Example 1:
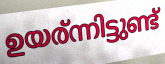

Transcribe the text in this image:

ഉയര്ന്നിട്ടുണ്ട്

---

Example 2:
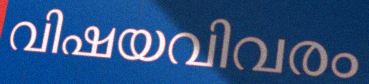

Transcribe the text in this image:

വിഷയവിവരം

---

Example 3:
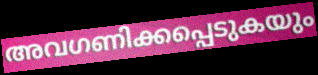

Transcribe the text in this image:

അവഗണിക്കപ്പെടുകയും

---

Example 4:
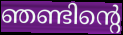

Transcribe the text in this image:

ഞണ്ടിന്റെ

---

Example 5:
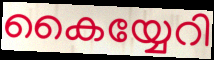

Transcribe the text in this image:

കൈയ്യേറി